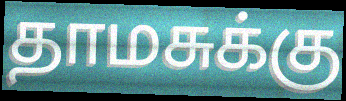
தாமசுக்கு